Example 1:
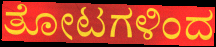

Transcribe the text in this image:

ತೋಟಗಳಿಂದ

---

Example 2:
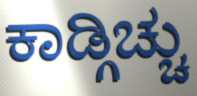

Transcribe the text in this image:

ಕಾಡ್ಗಿಚ್ಚು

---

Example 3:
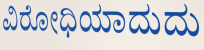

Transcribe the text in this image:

ವಿರೋಧಿಯಾದುದು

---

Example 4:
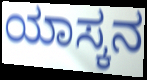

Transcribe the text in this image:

ಯಾಸ್ಕನ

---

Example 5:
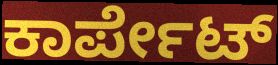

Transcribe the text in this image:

ಕಾರ್ಪೇಟ್